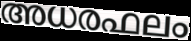
അധരഫലം